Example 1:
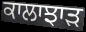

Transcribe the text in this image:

ਕਾਲਾਝਾਡ਼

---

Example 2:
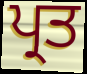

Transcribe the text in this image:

ਪ੍ਰਤ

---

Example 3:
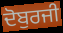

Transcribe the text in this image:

ਦੋਬੁਰਜੀ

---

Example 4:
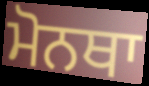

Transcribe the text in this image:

ਮੋਨਥਾ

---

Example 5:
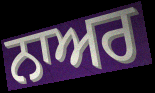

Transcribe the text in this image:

ਨਾਅਰ